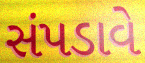
સંપડાવે